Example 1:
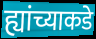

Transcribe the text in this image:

ह्यांच्याकडे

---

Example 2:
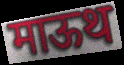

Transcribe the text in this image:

माऊथ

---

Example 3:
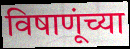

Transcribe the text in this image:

विषाणूंच्या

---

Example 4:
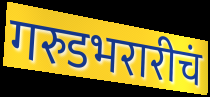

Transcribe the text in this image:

गरुडभरारीचं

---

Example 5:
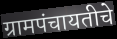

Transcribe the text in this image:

ग्रामपंचायतीचे